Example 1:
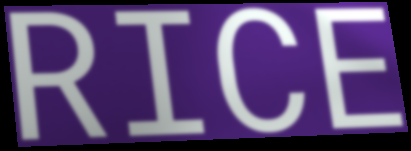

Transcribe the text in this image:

RICE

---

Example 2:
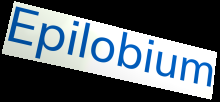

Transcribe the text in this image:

Epilobium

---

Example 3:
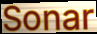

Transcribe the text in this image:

Sonar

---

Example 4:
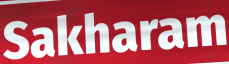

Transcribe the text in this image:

Sakharam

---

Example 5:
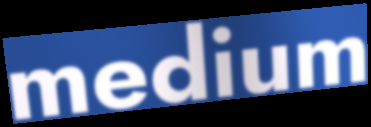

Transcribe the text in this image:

medium